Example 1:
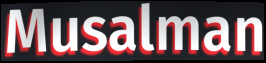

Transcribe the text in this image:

Musalman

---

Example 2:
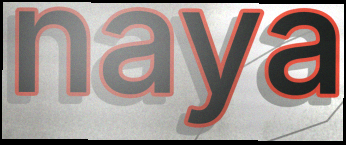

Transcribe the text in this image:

naya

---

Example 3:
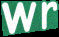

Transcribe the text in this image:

wr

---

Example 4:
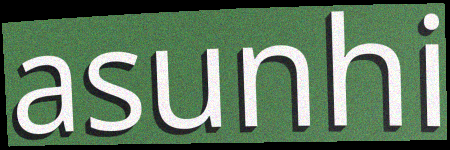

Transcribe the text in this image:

asunhi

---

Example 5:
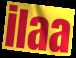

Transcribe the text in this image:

ilaa